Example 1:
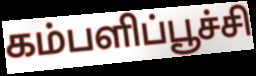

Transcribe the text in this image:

கம்பளிப்பூச்சி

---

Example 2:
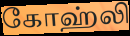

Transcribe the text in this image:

கோஹ்லி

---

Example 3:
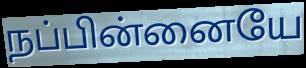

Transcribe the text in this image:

நப்பின்னையே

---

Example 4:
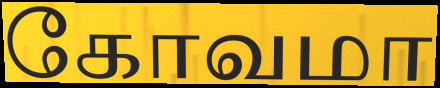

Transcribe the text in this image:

கோவமா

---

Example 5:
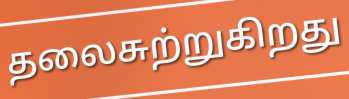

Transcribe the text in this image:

தலைசுற்றுகிறது